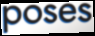
poses